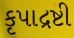
કૃપાદ્રષ્ટી